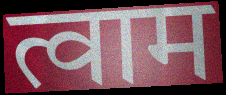
त्वाम